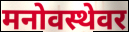
मनोवस्थेवर